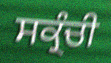
ਸਕ੍ਰੰਚੀ